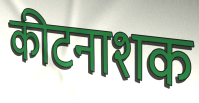
कीटनाशक